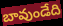
బావుండేది